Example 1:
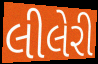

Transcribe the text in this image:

લીલેરી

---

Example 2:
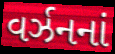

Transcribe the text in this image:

વર્ઝનનાં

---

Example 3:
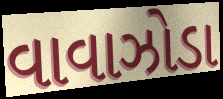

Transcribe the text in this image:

વાવાઝોડા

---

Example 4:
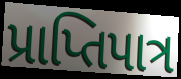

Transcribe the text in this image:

પ્રાપ્તિપાત્ર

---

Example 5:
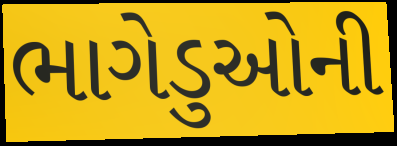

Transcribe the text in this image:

ભાગેડુઓની